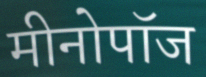
मीनोपॉज